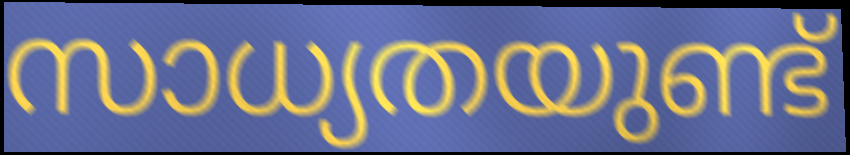
സാധ്യതയുണ്ട്